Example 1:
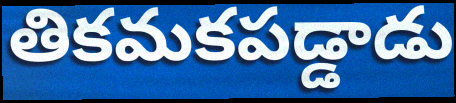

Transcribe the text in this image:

తికమకపడ్డాడు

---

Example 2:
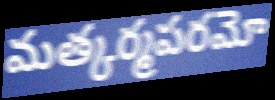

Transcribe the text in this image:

మత్కర్మపరమో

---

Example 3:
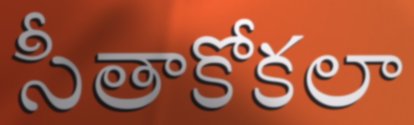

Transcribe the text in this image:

సీతాకోకలా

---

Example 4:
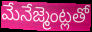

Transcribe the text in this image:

మేనేజ్మెంట్లతో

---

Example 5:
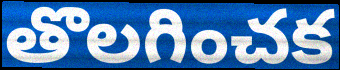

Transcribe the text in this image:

తొలగించక